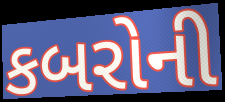
કબરોની